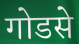
गोडसे